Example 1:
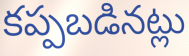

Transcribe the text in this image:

కప్పబడినట్లు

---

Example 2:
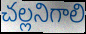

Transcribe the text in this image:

చల్లనిగాలి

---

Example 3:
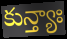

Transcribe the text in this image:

కున్త్యాః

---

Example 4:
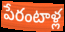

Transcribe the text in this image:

పేరంటాళ్ల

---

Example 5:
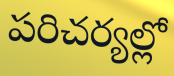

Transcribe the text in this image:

పరిచర్యల్లో